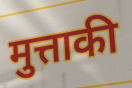
मुत्ताकी